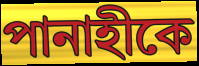
পানাহীকে